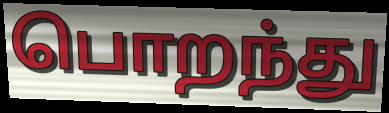
பொறந்து